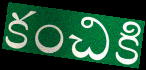
కంచికి